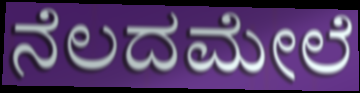
ನೆಲದಮೇಲೆ